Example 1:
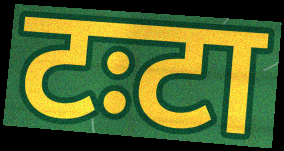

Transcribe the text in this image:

टःटा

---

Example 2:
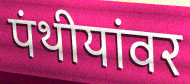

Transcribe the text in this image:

पंथीयांवर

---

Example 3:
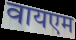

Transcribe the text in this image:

वायएम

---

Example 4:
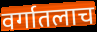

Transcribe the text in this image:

वर्गातलाच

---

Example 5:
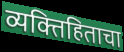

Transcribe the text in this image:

व्यक्तिहिताचा